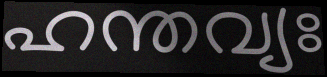
ഹന്തവ്യഃ